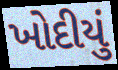
ખોદીયું